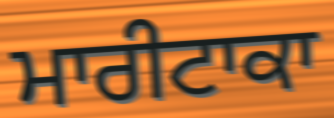
ਮਾਰੀਟਾਕਾ